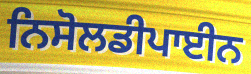
ਨਿਸੋਲਡੀਪਾਈਨ